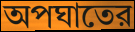
অপঘাতের